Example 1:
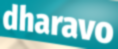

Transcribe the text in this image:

dharavo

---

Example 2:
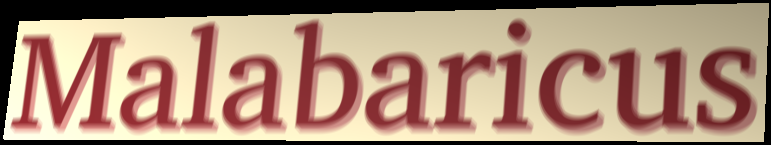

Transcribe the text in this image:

Malabaricus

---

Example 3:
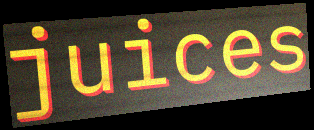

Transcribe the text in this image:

juices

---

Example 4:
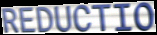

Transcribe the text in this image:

REDUCTIO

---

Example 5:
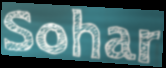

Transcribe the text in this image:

Sohar